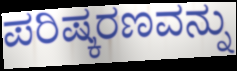
ಪರಿಷ್ಕರಣವನ್ನು